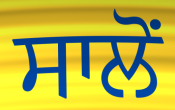
ਸਾਲੋਂ